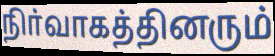
நிர்வாகத்தினரும்